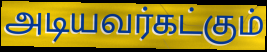
அடியவர்கட்கும்